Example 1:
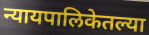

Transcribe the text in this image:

न्यायपालिकेतल्या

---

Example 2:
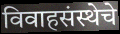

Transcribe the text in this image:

विवाहसंस्थेचे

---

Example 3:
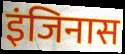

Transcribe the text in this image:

इंजिनास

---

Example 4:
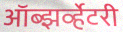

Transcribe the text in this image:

ऑब्झर्व्हेटरी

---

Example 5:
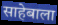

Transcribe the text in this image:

साहेबाला